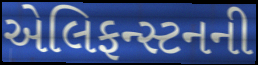
એલિફન્સ્ટનની